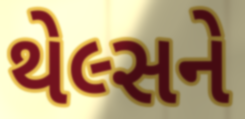
થેલ્સને